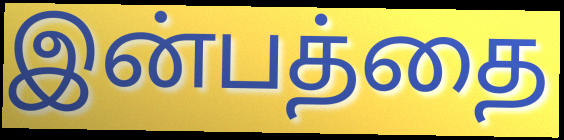
இன்பத்தை